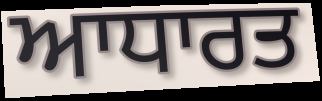
ਆਧਾਰਤ